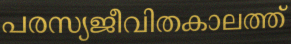
പരസ്യജീവിതകാലത്ത്